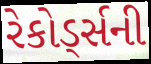
રેકોર્ડ્સની